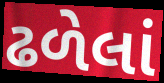
ઢળેલાં